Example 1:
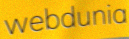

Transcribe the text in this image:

webdunia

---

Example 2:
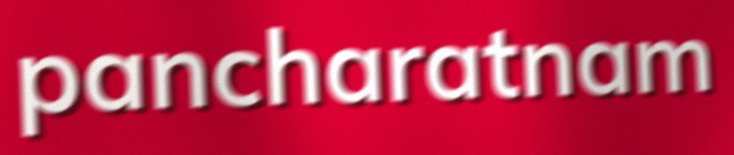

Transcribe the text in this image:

pancharatnam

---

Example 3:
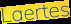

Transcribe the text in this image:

Laertes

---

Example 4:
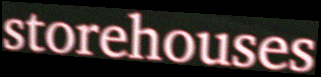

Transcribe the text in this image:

storehouses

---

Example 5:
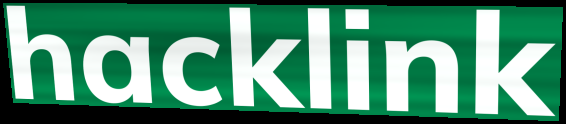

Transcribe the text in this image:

hacklink